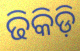
ଢିକିଡ଼ି